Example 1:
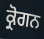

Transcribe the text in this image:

ਕ੍ਰੋਗਨ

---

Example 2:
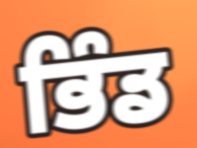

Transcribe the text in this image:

ਭਿੰਡ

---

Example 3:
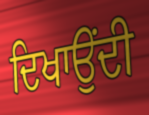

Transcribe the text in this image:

ਦਿਖਾਉਂਦੀ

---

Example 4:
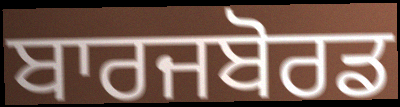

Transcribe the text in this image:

ਬਾਰਜਬੋਰਡ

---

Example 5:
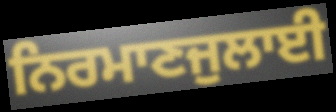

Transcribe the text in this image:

ਨਿਰਮਾਣਜੁਲਾਈ